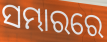
ସମ୍ଭାରରେ